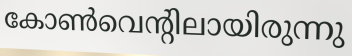
കോൺവെന്റിലായിരുന്നു